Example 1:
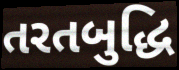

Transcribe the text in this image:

તરતબુદ્ધિ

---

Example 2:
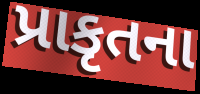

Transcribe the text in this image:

પ્રાકૃતના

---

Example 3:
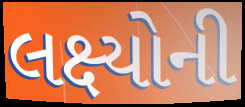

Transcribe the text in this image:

લક્ષ્યોની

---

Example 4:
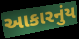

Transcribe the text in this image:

આકારનુંય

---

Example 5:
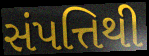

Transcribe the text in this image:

સંપત્તિથી